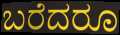
ಬರೆದರೂ